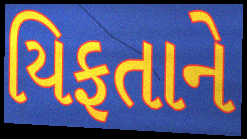
યિફતાને